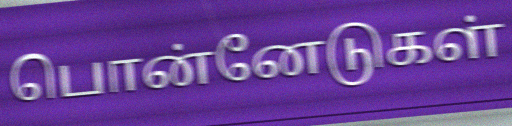
பொன்னேடுகள்